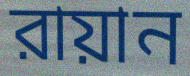
রায়ান